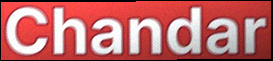
Chandar